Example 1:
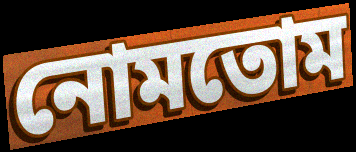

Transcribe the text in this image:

নোমতোম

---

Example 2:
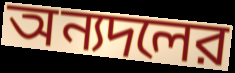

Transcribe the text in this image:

অন্যদলের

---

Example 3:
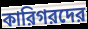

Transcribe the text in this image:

কারিগরদের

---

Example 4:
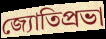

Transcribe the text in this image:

জ্যোতিপ্রভা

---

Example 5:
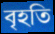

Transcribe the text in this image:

বৃহতি